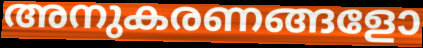
അനുകരണങ്ങളോ